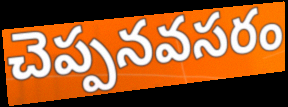
చెప్పనవసరం